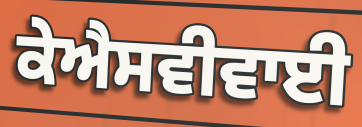
ਕੇਐਸਵੀਵਾਈ